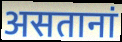
असतानां